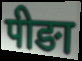
पीङा